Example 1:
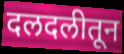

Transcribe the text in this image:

दलदलीतून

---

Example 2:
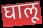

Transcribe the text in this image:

घालू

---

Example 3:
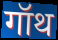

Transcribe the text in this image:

गॉथ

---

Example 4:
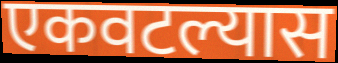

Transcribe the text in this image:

एकवटल्यास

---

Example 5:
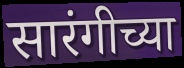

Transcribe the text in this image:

सारंगीच्या